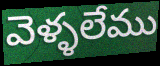
వెళ్ళలేము